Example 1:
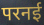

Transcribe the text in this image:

परनई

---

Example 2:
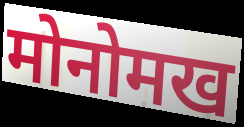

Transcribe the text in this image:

मोनोमख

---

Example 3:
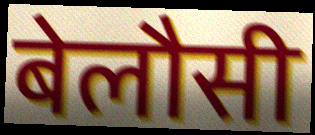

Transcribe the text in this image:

बेलौसी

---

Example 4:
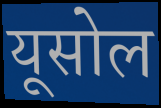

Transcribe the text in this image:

यूसोल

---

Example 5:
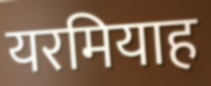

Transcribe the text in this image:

यरमियाह